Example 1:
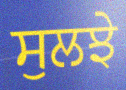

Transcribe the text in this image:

ਸੁਲਝੇ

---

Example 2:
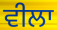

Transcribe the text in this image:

ਵੀਲਾ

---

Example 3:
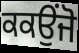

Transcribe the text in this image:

ਕਕਉਂਜੋ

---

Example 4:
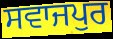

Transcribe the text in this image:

ਸਵਾਜਪੁਰ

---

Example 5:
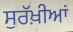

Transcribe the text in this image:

ਸੁਰੱਖ਼ੀਆਂ